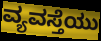
ವ್ಯವಸ್ತೆಯು